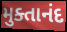
મુક્તાનંદ